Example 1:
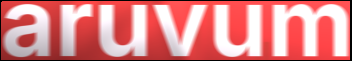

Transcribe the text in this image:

aruvum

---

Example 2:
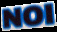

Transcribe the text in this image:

NOI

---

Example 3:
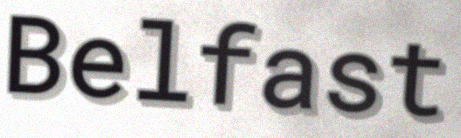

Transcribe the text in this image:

Belfast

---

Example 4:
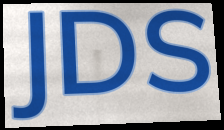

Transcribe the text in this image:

JDS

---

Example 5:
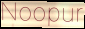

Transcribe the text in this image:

Noopur